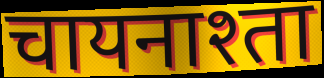
चायनाश्ता